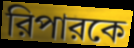
রিপারকে